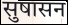
सुषासन